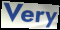
Very